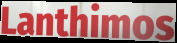
Lanthimos